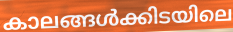
കാലങ്ങൾക്കിടയിലെ